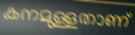
കനമുള്ളതാണ്